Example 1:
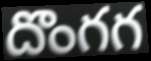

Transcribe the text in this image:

దొంగగ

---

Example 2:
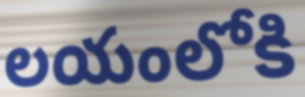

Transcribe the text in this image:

లయంలోకి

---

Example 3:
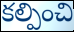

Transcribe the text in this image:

కల్పించి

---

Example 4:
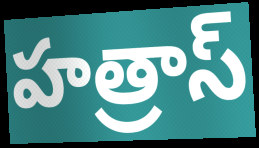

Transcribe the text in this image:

హత్రాస్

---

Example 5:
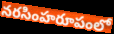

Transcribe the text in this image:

నరసింహరూపంలో